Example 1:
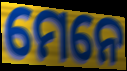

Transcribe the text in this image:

ମେନେ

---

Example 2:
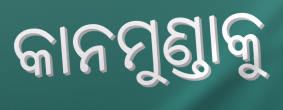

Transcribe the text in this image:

କାନମୁଣ୍ଡାକୁ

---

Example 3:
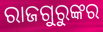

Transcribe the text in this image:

ରାଜଗୁରୁଙ୍କର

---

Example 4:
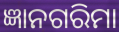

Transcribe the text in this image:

ଜ୍ଞାନଗରିମା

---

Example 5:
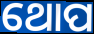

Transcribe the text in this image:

ଥୋପ